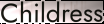
Childress